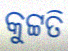
କୁଟ୍ଟତି